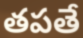
తపతే